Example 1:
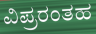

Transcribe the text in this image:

ವಿಪ್ರರಂತಹ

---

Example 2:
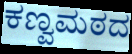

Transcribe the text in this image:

ಕಣ್ವಮಠದ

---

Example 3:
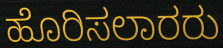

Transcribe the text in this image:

ಹೊರಿಸಲಾರರು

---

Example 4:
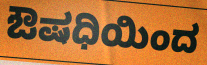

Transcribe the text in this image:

ಔಷಧಿಯಿಂದ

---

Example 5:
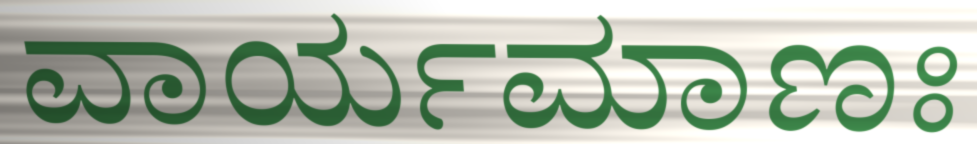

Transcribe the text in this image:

ವಾರ್ಯಮಾಣಃ